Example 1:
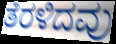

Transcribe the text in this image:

ತೆರಳಿದವು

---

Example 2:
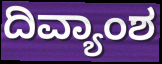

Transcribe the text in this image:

ದಿವ್ಯಾಂಶ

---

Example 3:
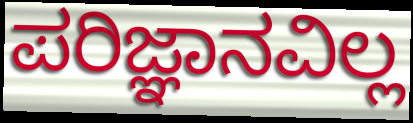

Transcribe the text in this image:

ಪರಿಜ್ಞಾನವಿಲ್ಲ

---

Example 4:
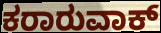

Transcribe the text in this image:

ಕರಾರುವಾಕ್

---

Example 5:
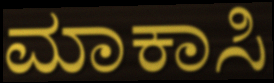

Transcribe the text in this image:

ಮಾಕಾಸಿ